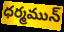
ధర్మమున్